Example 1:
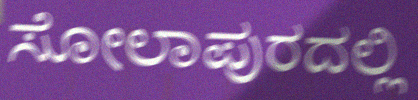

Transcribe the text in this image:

ಸೋಲಾಪುರದಲ್ಲಿ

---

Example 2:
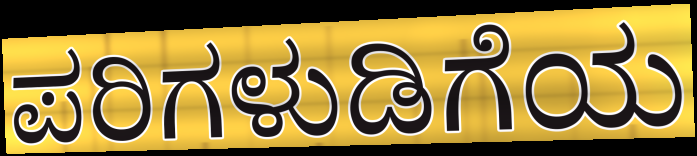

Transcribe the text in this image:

ಪರಿಗಳುಡಿಗೆಯ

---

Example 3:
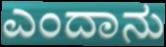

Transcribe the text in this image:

ಎಂದಾನು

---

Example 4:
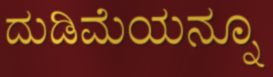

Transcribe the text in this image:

ದುಡಿಮೆಯನ್ನೂ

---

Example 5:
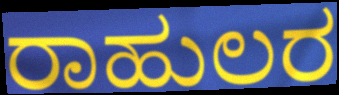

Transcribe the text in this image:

ರಾಹುಲರ